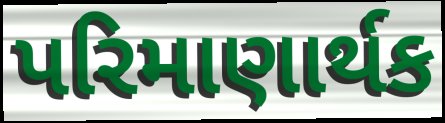
પરિમાણાર્થક